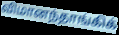
விமானந்தாங்கிக்